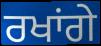
ਰਖਾਂਗੇ